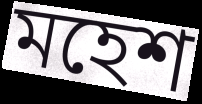
মহেশ